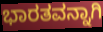
ಭಾರತವನ್ನಾಗಿ